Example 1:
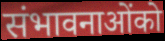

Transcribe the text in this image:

संभावनाओंको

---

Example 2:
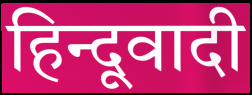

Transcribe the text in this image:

हिन्दूवादी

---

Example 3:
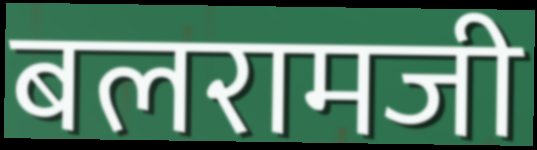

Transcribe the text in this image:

बलरामजी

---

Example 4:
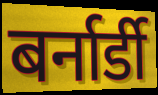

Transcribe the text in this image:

बर्नार्डी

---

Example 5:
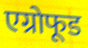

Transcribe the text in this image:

एग्रोफूड